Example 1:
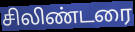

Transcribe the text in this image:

சிலிண்டரை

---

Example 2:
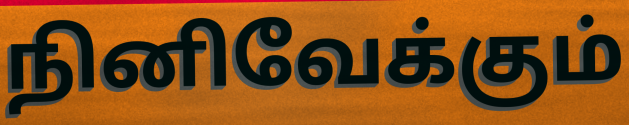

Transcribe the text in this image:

நினிவேக்கும்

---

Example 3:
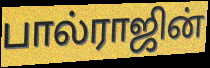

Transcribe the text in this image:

பால்ராஜின்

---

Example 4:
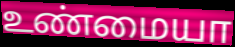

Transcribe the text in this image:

உண்மையா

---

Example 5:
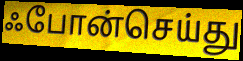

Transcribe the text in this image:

ஃபோன்செய்து